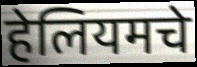
हेलियमचे